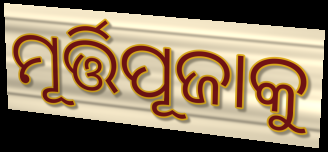
ମୂର୍ତ୍ତିପୂଜାକୁ